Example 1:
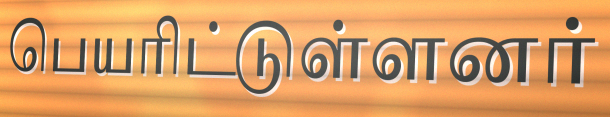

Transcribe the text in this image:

பெயரிட்டுள்ளனர்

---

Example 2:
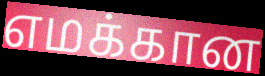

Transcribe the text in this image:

எமக்கான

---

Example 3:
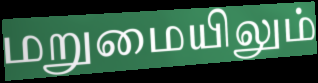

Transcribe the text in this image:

மறுமையிலும்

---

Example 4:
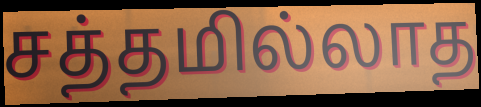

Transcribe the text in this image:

சத்தமில்லாத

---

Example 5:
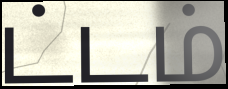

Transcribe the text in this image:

ட்டம்